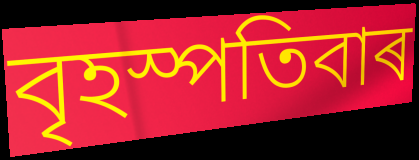
বৃহস্পতিবাৰ